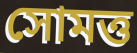
সোমত্ত